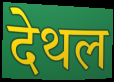
देथल